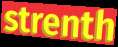
strenth